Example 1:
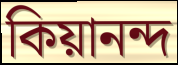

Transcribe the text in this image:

কিয়ানন্দ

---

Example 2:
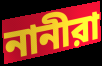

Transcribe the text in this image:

নানীরা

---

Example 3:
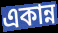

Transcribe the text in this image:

একান্ন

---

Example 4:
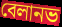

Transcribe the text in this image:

বেলানভ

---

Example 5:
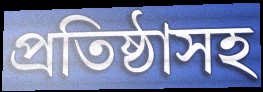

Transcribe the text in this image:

প্রতিষ্ঠাসহ